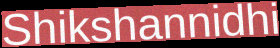
Shikshannidhi